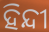
ହିନ୍ଦୀ